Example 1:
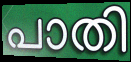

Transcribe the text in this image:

പാതി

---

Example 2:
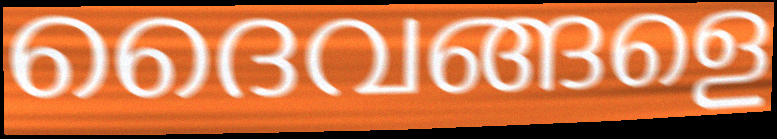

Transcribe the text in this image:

ദൈവങ്ങളെ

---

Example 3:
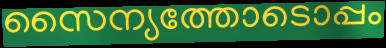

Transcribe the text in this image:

സൈന്യത്തോടൊപ്പം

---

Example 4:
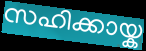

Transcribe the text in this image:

സഹിക്കായ്ക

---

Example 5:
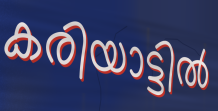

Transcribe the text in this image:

കരിയാട്ടിൽ